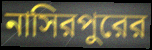
নাসিরপুরের